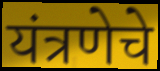
यंत्रणेचे